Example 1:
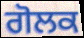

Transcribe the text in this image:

ਗੋਲਕ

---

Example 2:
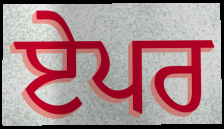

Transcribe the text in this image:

ਏਪਰ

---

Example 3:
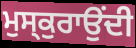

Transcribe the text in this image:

ਮੁਸ੍ਕੁਰਾਉਂਦੀ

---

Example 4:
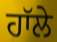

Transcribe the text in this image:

ਹਾੱਲੇ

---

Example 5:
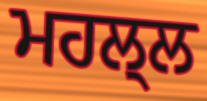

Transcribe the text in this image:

ਮਹਲ੍ਲ